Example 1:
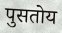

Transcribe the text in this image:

पुसतोय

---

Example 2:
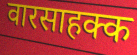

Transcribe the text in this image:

वारसाहक्क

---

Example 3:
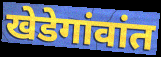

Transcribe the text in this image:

खेडेगांवांत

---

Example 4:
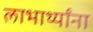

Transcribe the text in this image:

लाभार्थ्यांना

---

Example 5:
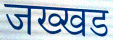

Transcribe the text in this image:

जख्खड